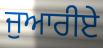
ਜੁਆਰੀਏ